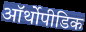
ऑर्थोपीडिक